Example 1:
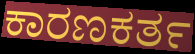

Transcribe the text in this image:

ಕಾರಣಕರ್ತ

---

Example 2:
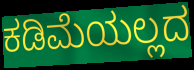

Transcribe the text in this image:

ಕಡಿಮೆಯಲ್ಲದ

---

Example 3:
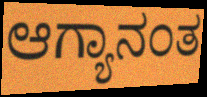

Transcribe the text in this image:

ಆಗ್ಯಾನಂತ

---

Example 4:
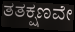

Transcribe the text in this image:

ತತಕ್ಷಣವೇ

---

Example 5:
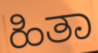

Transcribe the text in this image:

ಹಿತಾ